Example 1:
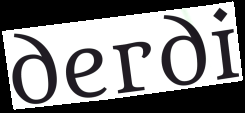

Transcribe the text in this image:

derdi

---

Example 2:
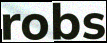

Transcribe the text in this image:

robs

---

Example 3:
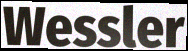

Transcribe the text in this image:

Wessler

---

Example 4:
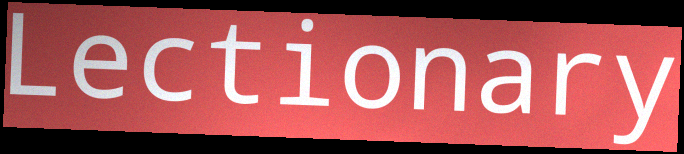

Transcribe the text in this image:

Lectionary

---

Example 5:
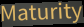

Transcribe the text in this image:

Maturity